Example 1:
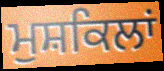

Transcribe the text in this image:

ਮੁਸ਼ਕਿਲਾਂ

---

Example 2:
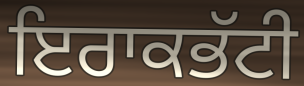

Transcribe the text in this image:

ਇਰਾਕਭੱਟੀ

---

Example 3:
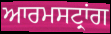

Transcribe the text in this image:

ਆਰਮਸਟ੍ਰਾਂਗ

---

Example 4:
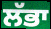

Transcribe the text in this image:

ਲੱਭਾ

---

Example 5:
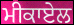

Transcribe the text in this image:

ਮੀਕਾਏਲ